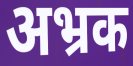
अभ्रक